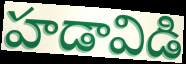
హడావిడి